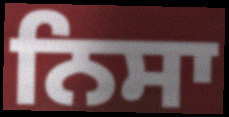
ਨਿਸਾ